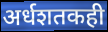
अर्धशतकही